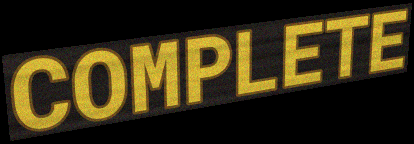
COMPLETE